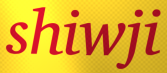
shiwji